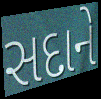
સદાને